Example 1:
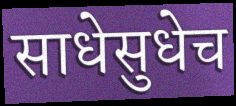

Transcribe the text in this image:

साधेसुधेच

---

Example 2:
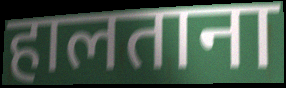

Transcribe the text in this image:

हालताना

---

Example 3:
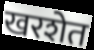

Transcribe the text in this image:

खरशेत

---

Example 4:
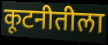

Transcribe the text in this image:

कूटनीतीला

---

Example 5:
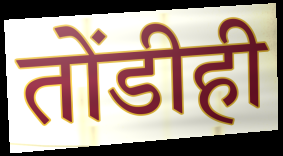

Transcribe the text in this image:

तोंडीही